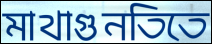
মাথাগুনতিতে